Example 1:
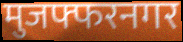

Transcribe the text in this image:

मुजफ्फरनगर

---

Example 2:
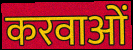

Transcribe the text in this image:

करवाओं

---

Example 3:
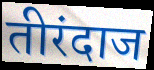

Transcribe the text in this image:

तीरंदाज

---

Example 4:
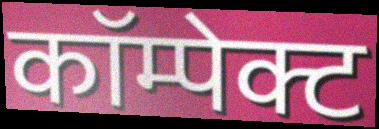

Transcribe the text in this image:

कॉम्पेक्ट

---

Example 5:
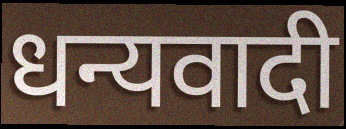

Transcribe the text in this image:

धन्यवादी